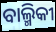
ବାଲ୍ମିକୀ